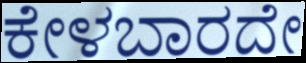
ಕೇಳಬಾರದೇ